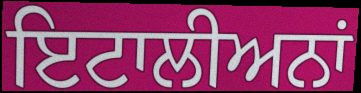
ਇਟਾਲੀਅਨਾਂ